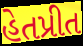
હેતપ્રીત